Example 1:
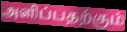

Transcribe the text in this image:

அளிப்பதற்கும்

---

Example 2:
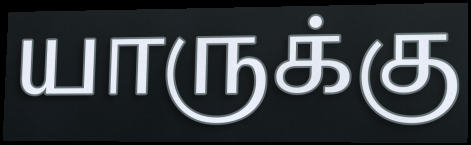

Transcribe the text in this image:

யாருக்கு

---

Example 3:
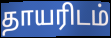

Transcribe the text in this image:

தாயரிடம்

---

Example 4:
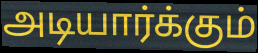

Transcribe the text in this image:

அடியார்க்கும்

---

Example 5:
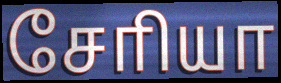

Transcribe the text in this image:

சேரியா